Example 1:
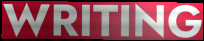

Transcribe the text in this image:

WRITING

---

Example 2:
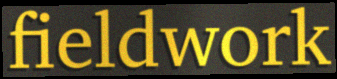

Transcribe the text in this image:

fieldwork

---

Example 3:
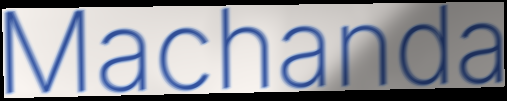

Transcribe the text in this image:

Machanda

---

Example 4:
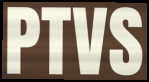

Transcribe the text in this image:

PTVS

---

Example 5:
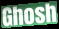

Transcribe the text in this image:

Ghosh